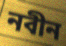
নবীন